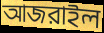
আজরাইল